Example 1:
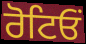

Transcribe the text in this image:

ਰੋਟਿਓਂ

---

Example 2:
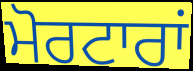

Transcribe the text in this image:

ਮੋਰਟਾਰਾਂ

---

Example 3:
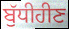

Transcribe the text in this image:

ਬੁੱਧੀਹੀਣ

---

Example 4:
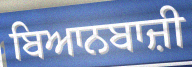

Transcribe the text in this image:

ਬਿਆਨਬਾਜ਼ੀ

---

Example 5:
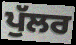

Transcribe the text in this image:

ਪੁੱਲਰ